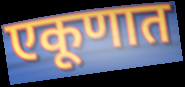
एकूणात